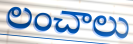
లంచాలు